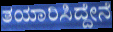
ತಯಾರಿಸಿದ್ದೇನೆ